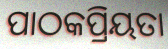
ପାଠକପ୍ରିୟତା